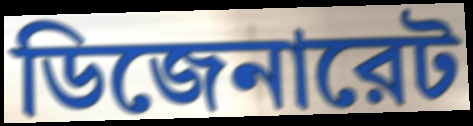
ডিজেনারেট